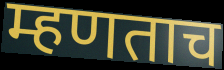
म्हणताच